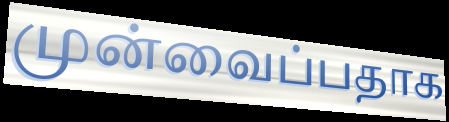
முன்வைப்பதாக